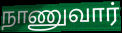
நாணுவார்